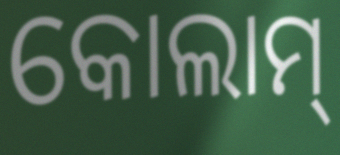
କୋଲାମ୍